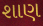
શાણ